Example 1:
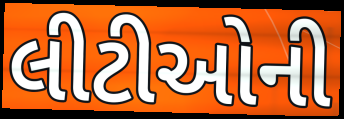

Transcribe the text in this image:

લીટીઓની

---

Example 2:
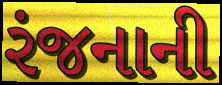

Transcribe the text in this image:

રંજનાની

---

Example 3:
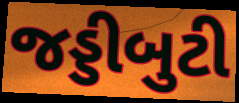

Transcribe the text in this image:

જડ્ડીબુટી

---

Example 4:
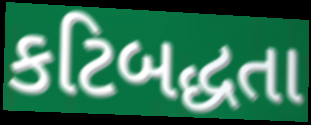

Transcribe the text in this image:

કટિબદ્ધતા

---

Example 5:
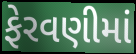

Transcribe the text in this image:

ફેરવણીમાં